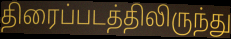
திரைப்படத்திலிருந்து